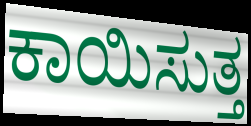
ಕಾಯಿಸುತ್ತ